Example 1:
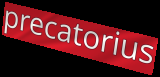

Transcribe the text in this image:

precatorius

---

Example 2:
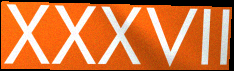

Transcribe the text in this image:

XXXVII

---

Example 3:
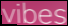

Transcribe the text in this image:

vibes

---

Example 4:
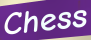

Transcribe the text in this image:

Chess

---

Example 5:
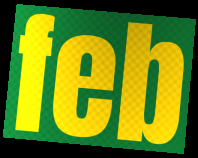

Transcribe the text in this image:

feb